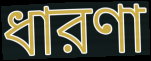
ধারণা